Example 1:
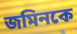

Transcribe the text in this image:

জমিনকে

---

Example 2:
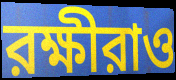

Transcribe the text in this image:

রক্ষীরাও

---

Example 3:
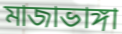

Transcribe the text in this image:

মাজাভাঙ্গা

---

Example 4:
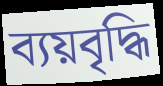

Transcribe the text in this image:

ব্যয়বৃদ্ধি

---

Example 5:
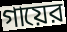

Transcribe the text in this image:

গায়ের